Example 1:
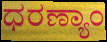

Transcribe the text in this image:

ಧರಣ್ಯಾಂ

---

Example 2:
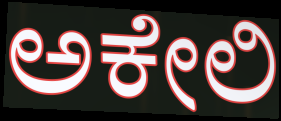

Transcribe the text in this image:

ಅಕೇಲಿ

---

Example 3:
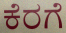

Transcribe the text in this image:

ಕೆರಗೆ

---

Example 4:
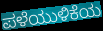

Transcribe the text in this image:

ಪಳೆಯುಳಿಕೆಯ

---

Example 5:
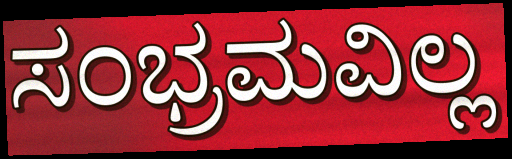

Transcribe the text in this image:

ಸಂಭ್ರಮವಿಲ್ಲ